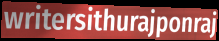
writersithurajponraj